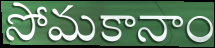
సోమకానాం